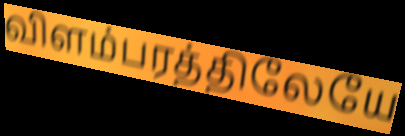
விளம்பரத்திலேயே